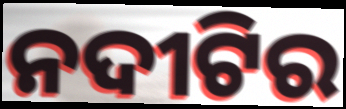
ନଦୀଟିର